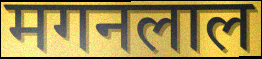
मगनलाल